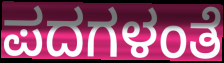
ಪದಗಳಂತೆ